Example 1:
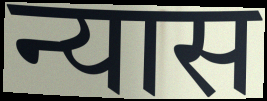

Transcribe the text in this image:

न्यास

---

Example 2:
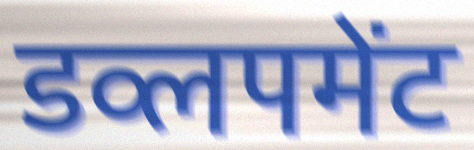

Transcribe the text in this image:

डव्लपमेंट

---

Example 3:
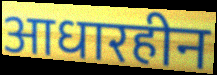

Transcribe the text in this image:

आधारहीन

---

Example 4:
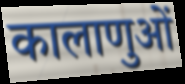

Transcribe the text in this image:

कालाणुओं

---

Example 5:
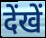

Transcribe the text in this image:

देंखें